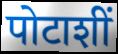
पोटाशीं